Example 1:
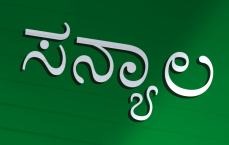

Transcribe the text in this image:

ಸನ್ಯಾಲ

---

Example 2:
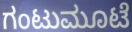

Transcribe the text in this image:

ಗಂಟುಮೂಟೆ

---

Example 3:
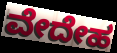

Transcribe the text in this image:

ವೇದೇಹ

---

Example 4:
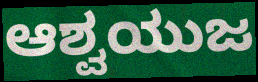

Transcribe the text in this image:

ಆಶ್ವಯುಜ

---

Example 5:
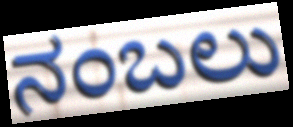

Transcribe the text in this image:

ನಂಬಲು